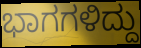
ಭಾಗಗಳಿದ್ದು